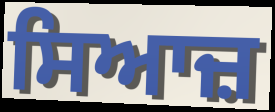
ਸਿਆਜ਼